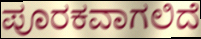
ಪೂರಕವಾಗಲಿದೆ